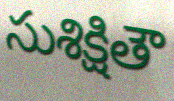
సుశిక్షితౌ